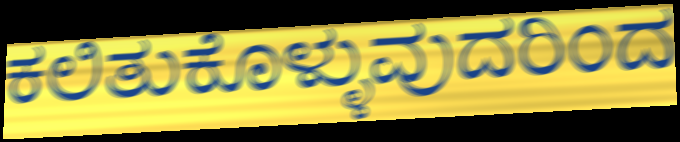
ಕಲಿತುಕೊಳ್ಳುವುದರಿಂದ